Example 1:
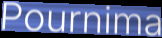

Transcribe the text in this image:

Pournima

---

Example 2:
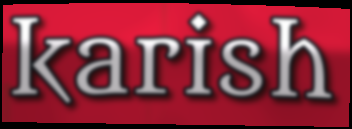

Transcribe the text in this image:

karish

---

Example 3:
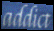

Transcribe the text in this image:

addict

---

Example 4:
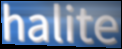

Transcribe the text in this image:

halite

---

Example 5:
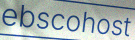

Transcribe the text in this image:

ebscohost